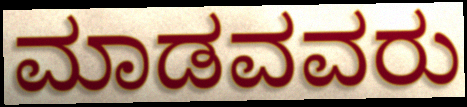
ಮಾಡವವರು